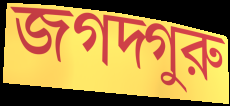
জগদ্গুরু